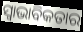
ସ୍ଵାଭାବିକତାର